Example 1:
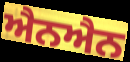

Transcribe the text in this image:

ਐਨਐਨ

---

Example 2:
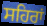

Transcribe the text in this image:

ਸਹਿਰਾਂ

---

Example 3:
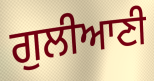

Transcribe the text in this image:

ਗੁਲੀਆਣੀ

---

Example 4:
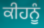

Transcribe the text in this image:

ਕੀਹਨੂੰ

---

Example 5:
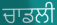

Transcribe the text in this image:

ਚਾਡਲੀ